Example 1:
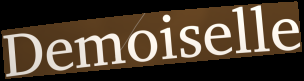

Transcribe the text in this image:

Demoiselle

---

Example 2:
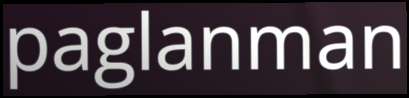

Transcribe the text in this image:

paglanman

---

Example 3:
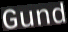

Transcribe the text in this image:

Gund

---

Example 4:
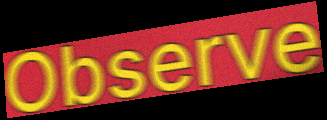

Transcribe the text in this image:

Observe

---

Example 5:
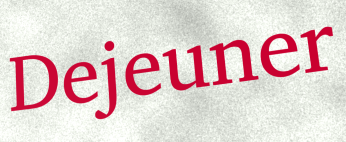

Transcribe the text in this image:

Dejeuner